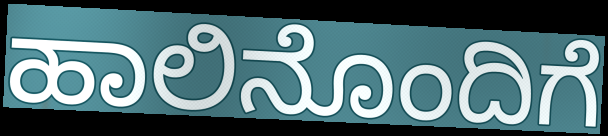
ಹಾಲಿನೊಂದಿಗೆ